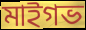
মাইগভ